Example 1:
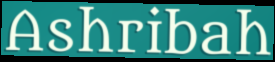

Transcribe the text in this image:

Ashribah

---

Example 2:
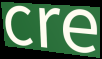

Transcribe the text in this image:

cre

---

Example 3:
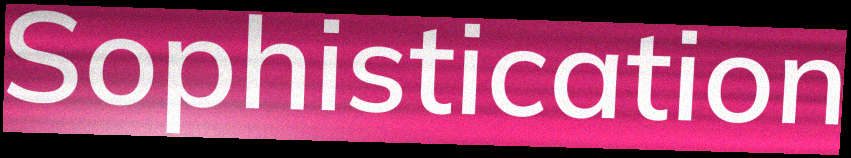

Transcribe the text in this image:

Sophistication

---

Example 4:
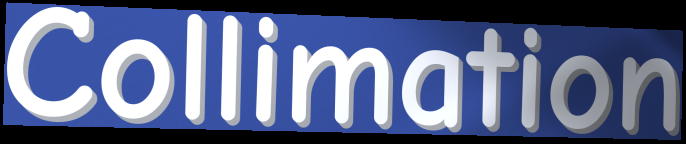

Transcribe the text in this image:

Collimation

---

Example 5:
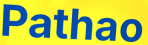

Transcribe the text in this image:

Pathao